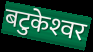
बटुकेश्‍वर